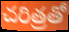
చరిత్రతో